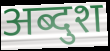
अब्दुश